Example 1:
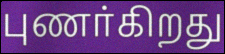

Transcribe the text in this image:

புணர்கிறது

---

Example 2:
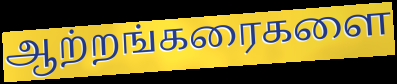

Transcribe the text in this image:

ஆற்றங்கரைகளை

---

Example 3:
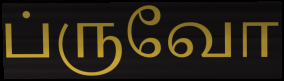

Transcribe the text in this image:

ப்ருவோ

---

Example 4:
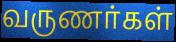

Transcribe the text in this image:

வருணர்கள்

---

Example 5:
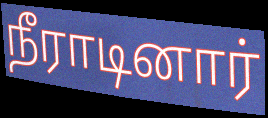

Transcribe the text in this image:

நீராடினார்